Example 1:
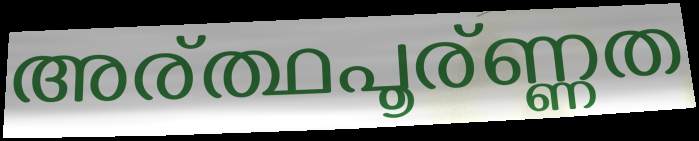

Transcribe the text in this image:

അര്ത്ഥപൂര്ണ്ണത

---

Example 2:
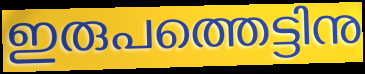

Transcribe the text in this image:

ഇരുപത്തെട്ടിനു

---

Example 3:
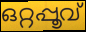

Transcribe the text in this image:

ഒറ്റപ്പൂവ്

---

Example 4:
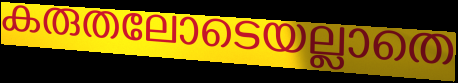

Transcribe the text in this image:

കരുതലോടെയല്ലാതെ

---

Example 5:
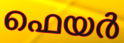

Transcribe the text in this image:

ഫെയർ